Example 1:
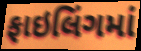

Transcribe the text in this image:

ફાઇલિંગમાં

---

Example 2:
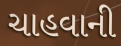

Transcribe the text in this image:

ચાહવાની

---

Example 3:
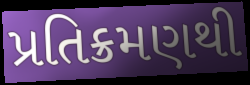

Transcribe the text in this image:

પ્રતિક્રમણથી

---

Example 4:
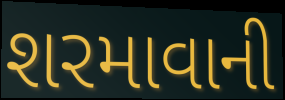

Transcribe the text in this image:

શરમાવાની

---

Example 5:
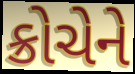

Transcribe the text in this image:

ક્રોચેને